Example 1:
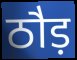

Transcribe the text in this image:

ठौड़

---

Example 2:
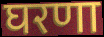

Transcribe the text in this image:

घरणा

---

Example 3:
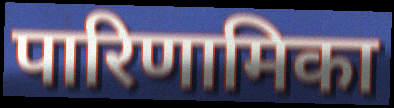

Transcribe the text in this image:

पारिणामिका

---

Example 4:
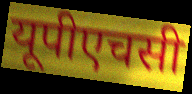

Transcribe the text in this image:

यूपीएचसी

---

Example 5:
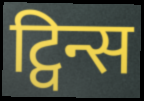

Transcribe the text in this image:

ट्विन्स